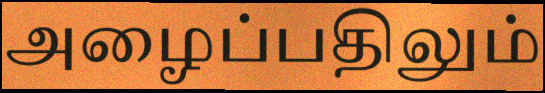
அழைப்பதிலும்